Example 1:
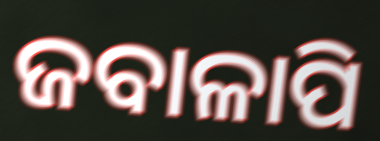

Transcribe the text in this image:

ଜବାଳାପି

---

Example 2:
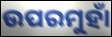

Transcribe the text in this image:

ଉପରମୁହାଁ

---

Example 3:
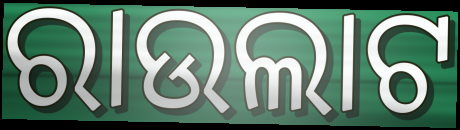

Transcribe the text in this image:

ରାଉଲାଟ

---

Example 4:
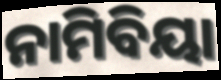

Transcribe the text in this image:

ନାମିବିୟା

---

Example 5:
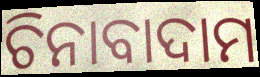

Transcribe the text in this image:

ଚିନାବାଦାମ